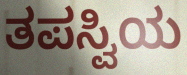
ತಪಸ್ವಿಯ